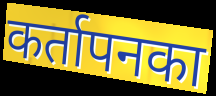
कर्तापनका